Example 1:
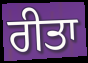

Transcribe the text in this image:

ਰੀਤਾ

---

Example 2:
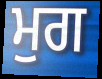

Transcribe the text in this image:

ਮੁਗ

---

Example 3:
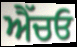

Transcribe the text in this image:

ਐੱਚਓ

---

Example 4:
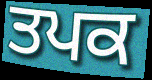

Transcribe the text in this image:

ਤਪਕ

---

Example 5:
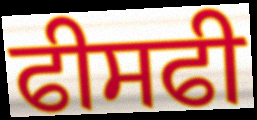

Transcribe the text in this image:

ਫੀਸਫੀ